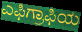
ಎಫಿಗ್ರಾಫಿಯ